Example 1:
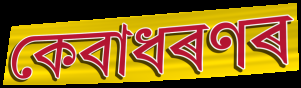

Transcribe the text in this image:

কেবাধৰণৰ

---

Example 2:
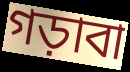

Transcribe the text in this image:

গড়াবা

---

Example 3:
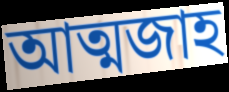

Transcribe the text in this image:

আত্মজাহ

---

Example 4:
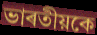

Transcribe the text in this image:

ভাৰতীয়কে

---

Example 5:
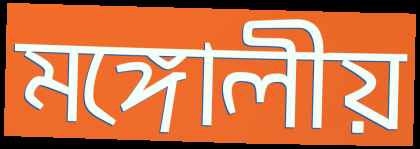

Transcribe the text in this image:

মঙ্গোলীয়